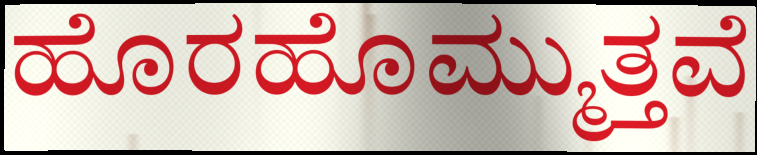
ಹೊರಹೊಮ್ಮುತ್ತವೆ